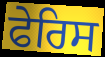
ਫੇਰਿਸ